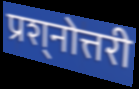
प्रश्नोत्तरी